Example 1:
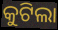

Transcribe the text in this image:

କୁଟିଲା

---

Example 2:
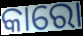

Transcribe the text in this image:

କାରୋ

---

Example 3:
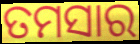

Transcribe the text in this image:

ତମସାର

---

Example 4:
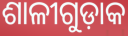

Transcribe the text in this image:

ଶାଳୀଗୁଡ଼ାକ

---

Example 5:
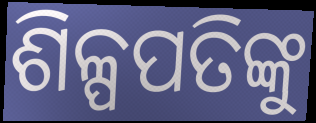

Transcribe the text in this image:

ଶିଳ୍ପପତିଙ୍କୁ